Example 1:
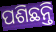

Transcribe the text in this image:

ପଶିଛନ୍ତି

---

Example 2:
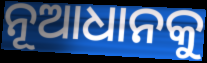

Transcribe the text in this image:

ନୂଆଧାନକୁ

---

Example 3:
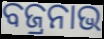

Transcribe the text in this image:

ବଜ୍ରନାଭ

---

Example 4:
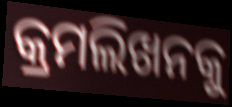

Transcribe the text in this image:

କ୍ରମଲିଖନକୁ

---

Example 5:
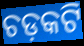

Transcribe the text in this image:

ଚଡ଼କଟି